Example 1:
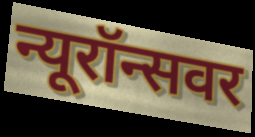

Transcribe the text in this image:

न्यूरॉन्सवर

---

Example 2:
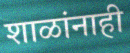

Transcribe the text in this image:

शाळांनाही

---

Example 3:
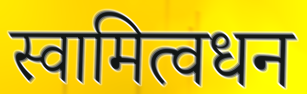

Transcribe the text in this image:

स्वामित्वधन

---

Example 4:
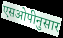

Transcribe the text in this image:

एसओपीनुसार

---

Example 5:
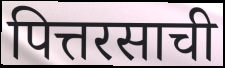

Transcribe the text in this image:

पित्तरसाची